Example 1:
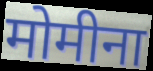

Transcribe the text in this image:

मोमीना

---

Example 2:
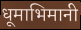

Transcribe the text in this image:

धूमाभिमानी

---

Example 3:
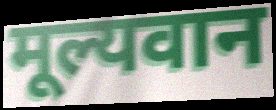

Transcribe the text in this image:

मूल्यवान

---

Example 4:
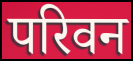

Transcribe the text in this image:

परिवन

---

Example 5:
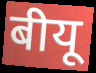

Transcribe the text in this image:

बीयू